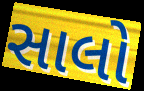
સાલો